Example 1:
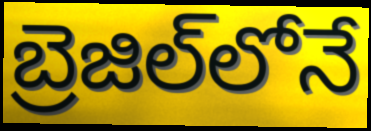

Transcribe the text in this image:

బ్రెజిల్‌లోనే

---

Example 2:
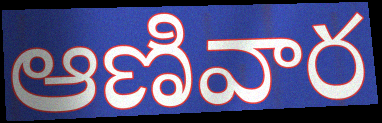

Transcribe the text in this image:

ఆణివార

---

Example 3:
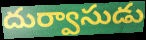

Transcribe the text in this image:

దుర్వాసుడు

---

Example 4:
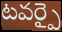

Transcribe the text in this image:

టవర్పై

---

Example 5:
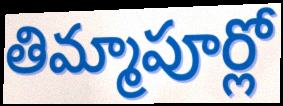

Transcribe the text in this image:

తిమ్మాపూర్లో